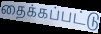
தைக்கப்பட்டு